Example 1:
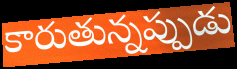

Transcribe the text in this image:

కారుతున్నప్పుడు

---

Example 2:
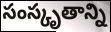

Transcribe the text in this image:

సంస్కృతాన్ని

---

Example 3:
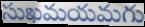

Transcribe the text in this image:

సుఖమయమగు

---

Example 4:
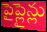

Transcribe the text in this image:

పైప్లైన్లు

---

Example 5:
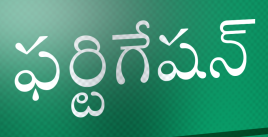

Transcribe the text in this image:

ఫర్టిగేషన్